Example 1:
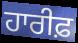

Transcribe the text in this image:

ਹਾਰੀਫ਼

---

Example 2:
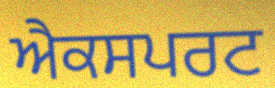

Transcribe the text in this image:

ਐਕਸਪਰਟ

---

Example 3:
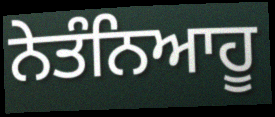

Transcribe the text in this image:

ਨੇਤੰਨਿਆਹੂ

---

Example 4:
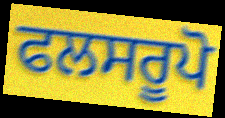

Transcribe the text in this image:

ਫਲਸਰੂਪੋ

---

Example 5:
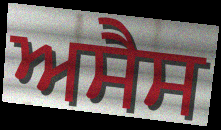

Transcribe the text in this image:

ਅਸੈਸ